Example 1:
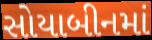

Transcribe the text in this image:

સોયાબીનમાં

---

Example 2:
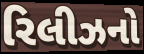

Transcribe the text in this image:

રિલીઝનો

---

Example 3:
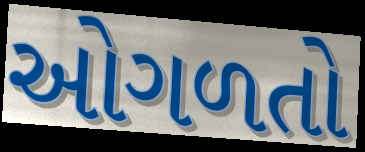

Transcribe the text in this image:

ઓગળતો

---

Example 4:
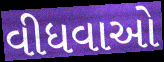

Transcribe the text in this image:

વીધવાઓ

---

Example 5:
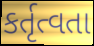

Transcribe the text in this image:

કર્તૃત્વતા